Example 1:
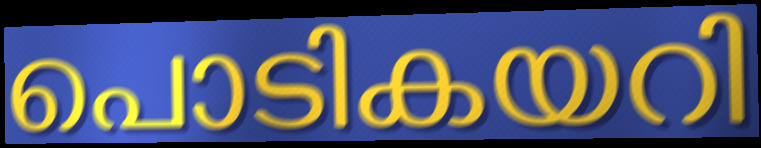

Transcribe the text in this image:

പൊടികയറി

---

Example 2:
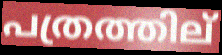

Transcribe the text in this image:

പത്രത്തില്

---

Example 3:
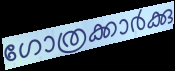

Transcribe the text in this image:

ഗോത്രക്കാർക്കു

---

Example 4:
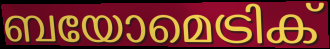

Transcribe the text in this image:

ബയോമെട്രിക്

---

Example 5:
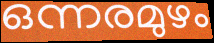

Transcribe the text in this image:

ഒന്നരമുഴം